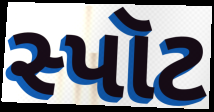
સ્પૉટ